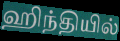
ஹிந்தியில்